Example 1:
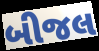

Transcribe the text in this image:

બીજલ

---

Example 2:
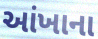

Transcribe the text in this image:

આંખાના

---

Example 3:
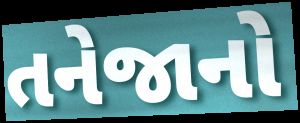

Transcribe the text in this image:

તનેજાનો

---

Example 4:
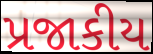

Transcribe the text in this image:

પ્રજાકીય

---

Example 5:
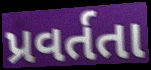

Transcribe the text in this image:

પ્રવર્તતા